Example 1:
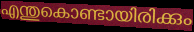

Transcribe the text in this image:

എന്തുകൊണ്ടായിരിക്കും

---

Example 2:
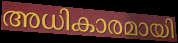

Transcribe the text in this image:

അധികാരമായി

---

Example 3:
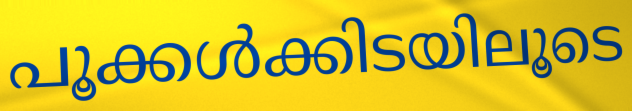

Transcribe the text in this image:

പൂക്കൾക്കിടയിലൂടെ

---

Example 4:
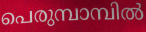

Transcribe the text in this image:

പെരുമ്പാമ്പിൽ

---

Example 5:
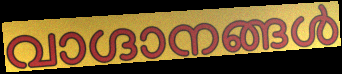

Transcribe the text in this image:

വാഗ്ദാനങ്ങൾ